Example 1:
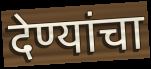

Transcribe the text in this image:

देण्यांचा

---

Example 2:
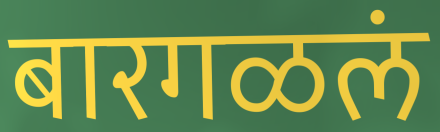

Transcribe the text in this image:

बारगळलं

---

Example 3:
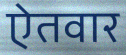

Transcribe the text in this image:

ऐतवार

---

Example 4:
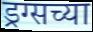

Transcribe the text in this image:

ड्रग्सच्या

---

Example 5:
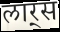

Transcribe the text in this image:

लार्स